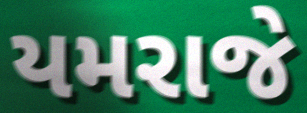
યમરાજે